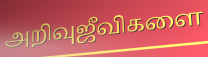
அறிவுஜீவிகளை